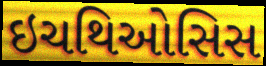
ઇચથિઓસિસ